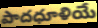
పాదధూళియే